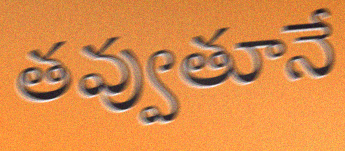
తవ్వుతూనే